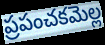
ప్రపంచకమెల్ల